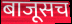
बाजूसच